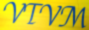
VTVM